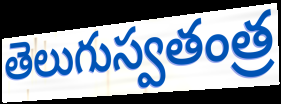
తెలుగుస్వతంత్ర